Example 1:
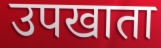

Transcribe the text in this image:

उपखाता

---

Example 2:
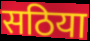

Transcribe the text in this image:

सठिया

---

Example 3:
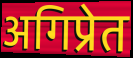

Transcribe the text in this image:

अगिप्रेत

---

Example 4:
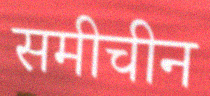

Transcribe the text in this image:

समीचीन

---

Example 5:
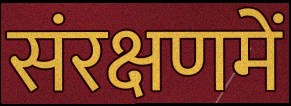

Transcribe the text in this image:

संरक्षणमें